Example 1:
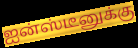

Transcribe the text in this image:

ஐன்ஸ்டீனுக்கு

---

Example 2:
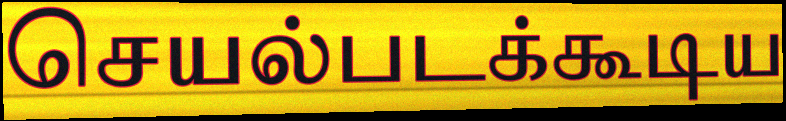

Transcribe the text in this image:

செயல்படக்கூடிய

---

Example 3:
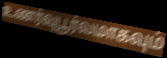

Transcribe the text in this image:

உணர்வுபூர்வமாகவும்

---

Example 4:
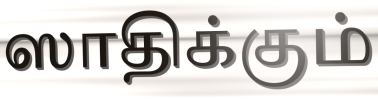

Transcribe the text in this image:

ஸாதிக்கும்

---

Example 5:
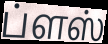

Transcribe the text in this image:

ப்ளஸ்